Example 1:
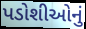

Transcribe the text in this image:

પડોશીઓનું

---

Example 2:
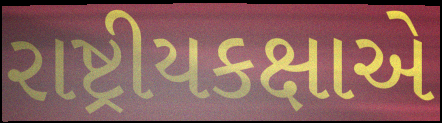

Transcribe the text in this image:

રાષ્ટ્રીયકક્ષાએ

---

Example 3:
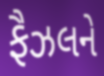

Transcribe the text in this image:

ફૈઝલને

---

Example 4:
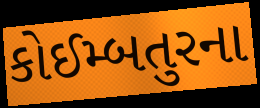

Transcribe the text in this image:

કોઈમ્બતુરના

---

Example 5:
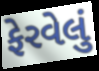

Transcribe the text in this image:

ફેરવેલું